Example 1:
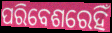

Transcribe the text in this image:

ପରିବେଶରେହିଁ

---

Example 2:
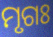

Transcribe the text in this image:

ମୃଗଃ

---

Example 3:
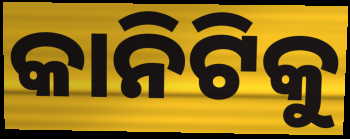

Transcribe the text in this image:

କାନିଟିକୁ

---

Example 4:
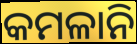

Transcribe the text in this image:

କମଳାନି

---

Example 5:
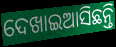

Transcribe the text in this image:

ଦେଖାଇଆସିଛନ୍ତି